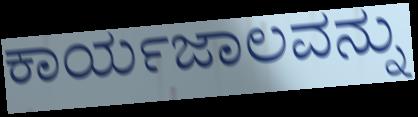
ಕಾರ್ಯಜಾಲವನ್ನು